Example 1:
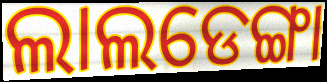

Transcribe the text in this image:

ଲାଲଡେଙ୍ଗା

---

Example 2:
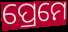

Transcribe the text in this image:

ପ୍ରେମେ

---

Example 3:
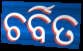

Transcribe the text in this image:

ଚର୍ବିତ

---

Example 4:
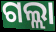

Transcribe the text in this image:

ଗଲ୍ଲା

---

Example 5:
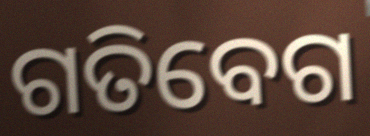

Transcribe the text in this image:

ଗତିବେଗ